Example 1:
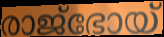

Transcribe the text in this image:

രാജ്ഭോയ്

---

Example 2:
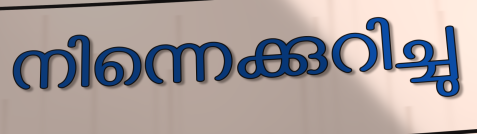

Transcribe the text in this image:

നിന്നെക്കുറിച്ചു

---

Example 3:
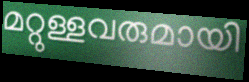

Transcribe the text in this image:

മറ്റുള്ളവരുമായി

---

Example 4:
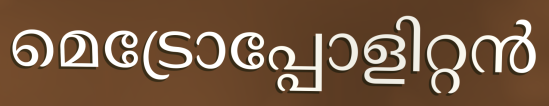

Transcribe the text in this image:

മെട്രോപ്പോളിറ്റൻ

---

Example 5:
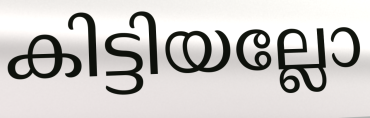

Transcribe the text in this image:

കിട്ടിയല്ലോ